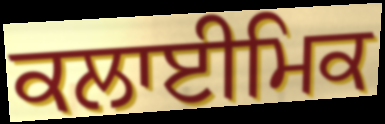
ਕਲਾਈਮਿਕ